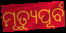
ମୃତ୍ୟୁପୂର୍ବ